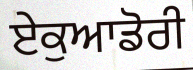
ਏਕੁਆਡੋਰੀ